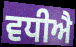
ਵਧੀਐ